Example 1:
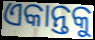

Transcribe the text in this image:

ଏକାନ୍ତକୁ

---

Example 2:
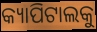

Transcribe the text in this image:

କ୍ୟାପିଟାଲକୁ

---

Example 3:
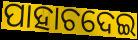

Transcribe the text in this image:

ପାହାଚଦେଇ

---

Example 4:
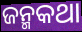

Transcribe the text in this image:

ଜନ୍ମକଥା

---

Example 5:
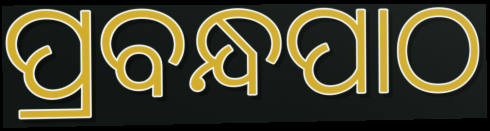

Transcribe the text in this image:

ପ୍ରବନ୍ଧପାଠ